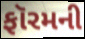
ફૉરમની